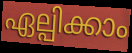
ഏല്പിക്കാം